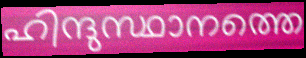
ഹിന്ദുസ്ഥാനത്തെ